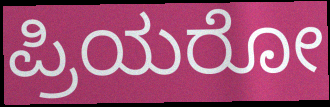
ಪ್ರಿಯರೋ